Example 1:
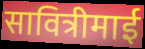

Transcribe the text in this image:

सावित्रीमाई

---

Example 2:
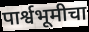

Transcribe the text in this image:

पार्श्वभूमीचा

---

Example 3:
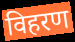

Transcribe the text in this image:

विहरण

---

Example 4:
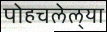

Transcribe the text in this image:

पोहचलेल्या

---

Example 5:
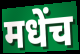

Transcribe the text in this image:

मधेंच